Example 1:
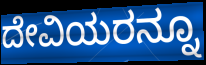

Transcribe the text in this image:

ದೇವಿಯರನ್ನೂ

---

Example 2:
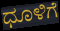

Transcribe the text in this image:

ಧೂಳಿಗೆ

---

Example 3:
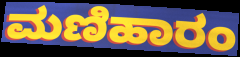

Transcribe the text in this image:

ಮಣಿಹಾರಂ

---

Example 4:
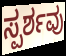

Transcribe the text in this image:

ಸ್ಪರ್ಶವು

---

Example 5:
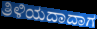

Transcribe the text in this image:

ತಿಳಿಯದಾದಾಗ